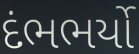
દંભભર્યો